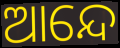
ଆନ୍ଦେ